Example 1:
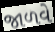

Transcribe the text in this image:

જાળવે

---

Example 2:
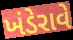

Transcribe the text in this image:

ખંડેરાવે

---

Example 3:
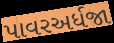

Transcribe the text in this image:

પાવરઅર્ધજા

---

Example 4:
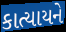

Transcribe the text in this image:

કાત્યાયને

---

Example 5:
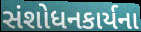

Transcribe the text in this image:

સંશોધનકાર્યના